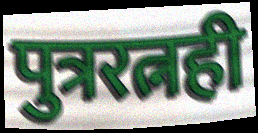
पुत्ररत्नही